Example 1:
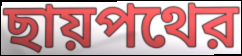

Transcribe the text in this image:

ছায়পথের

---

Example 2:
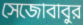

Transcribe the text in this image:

সেজোবাবুর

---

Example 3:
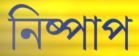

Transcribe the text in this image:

নিষ্পাপ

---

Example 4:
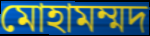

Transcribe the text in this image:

মোহামম্মদ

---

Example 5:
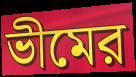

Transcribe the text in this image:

ভীমের